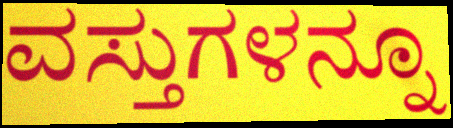
ವಸ್ತುಗಳನ್ನೂ